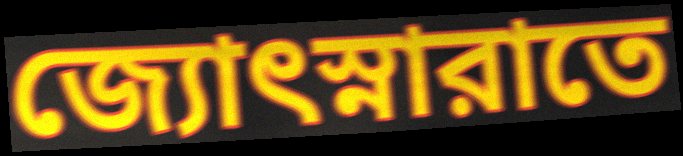
জ্যোৎস্নারাতে